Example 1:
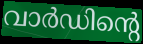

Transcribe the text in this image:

വാർഡിന്റെ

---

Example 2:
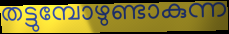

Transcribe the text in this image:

തട്ടുമ്പോഴുണ്ടാകുന്ന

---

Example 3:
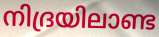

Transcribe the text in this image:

നിദ്രയിലാണ്ട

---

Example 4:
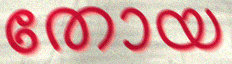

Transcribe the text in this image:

തോയ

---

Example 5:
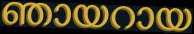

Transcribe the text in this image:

ഞായറായ